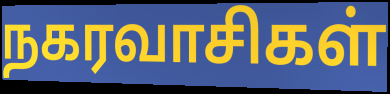
நகரவாசிகள்